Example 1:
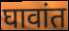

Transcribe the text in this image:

घावांत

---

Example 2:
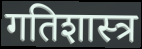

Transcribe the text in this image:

गतिशास्त्र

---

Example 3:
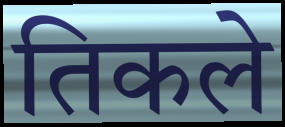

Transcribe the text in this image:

तिकले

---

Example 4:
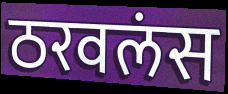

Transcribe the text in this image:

ठरवलंस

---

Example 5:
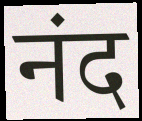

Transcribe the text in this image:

नंद